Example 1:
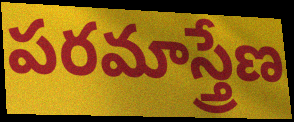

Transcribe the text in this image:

పరమాస్త్రేణ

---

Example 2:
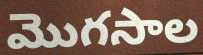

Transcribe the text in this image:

మొగసాల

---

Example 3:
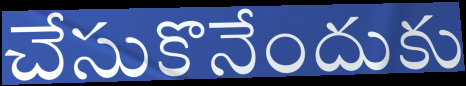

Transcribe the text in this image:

చేసుకొనేందుకు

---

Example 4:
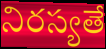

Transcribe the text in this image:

నిరస్యతే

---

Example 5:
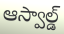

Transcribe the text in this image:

ఆస్వాల్డ్